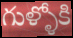
గుళ్ళోకి